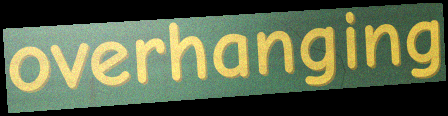
overhanging